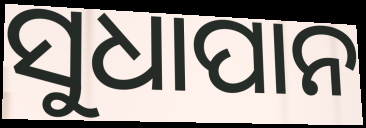
ସୁଧାପାନ